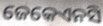
ଜେକେଏନସି